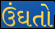
ઉંઘતો